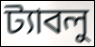
ট্যাবলু